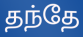
தந்தே